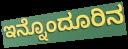
ಇನ್ನೊಂದೂರಿನ